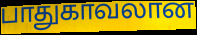
பாதுகாவலான